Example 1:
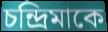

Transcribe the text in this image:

চন্দ্রিমাকে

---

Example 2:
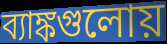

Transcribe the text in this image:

ব্যাঙ্কগুলোয়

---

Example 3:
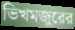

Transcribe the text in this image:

ভিখমজুরের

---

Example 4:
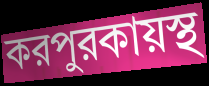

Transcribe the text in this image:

করপুরকায়স্থ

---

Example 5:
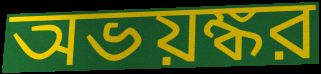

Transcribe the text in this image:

অভয়ঙ্কর